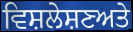
ਵਿਸ਼ਲੇਸ਼ਣਅਤੇ